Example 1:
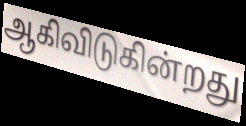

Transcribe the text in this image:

ஆகிவிடுகின்றது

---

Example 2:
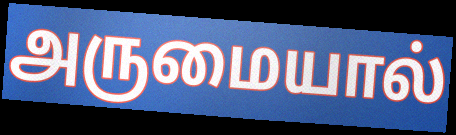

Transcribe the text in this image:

அருமையால்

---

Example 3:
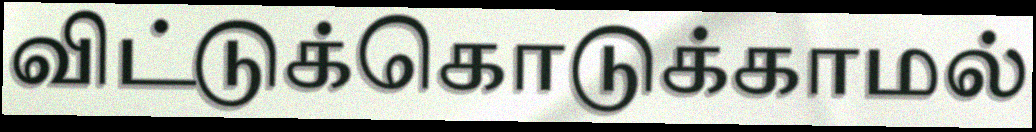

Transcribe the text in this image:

விட்டுக்கொடுக்காமல்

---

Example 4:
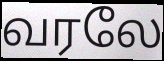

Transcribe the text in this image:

வரலே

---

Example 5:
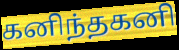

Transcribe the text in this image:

கனிந்தகனி